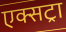
एक्सट्रा